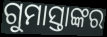
ଗୁମାସ୍ତାଙ୍କର